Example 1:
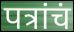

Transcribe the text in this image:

पत्रांचं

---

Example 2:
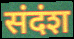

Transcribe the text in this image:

संदंश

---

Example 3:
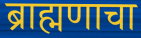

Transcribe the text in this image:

ब्राह्मणाचा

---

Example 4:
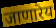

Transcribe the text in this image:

जाणारेय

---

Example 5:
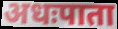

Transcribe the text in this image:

अधःपाता